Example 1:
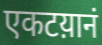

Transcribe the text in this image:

एकटय़ानं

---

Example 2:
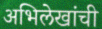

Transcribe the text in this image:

अभिलेखांची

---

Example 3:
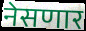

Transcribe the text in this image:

नेसणार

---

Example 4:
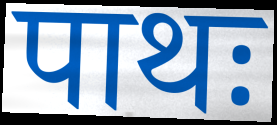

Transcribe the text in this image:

पाथः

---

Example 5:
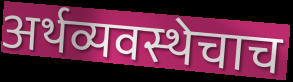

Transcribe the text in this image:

अर्थव्यवस्थेचाच